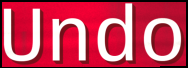
Undo